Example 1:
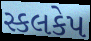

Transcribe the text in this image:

સ્કલકેપ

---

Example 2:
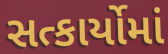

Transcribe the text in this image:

સત્કાર્યોમાં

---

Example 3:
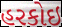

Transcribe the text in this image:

હરકોઇ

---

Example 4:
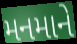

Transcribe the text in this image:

મનમાને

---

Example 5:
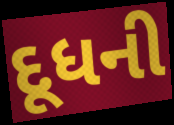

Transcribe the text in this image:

દૂધની